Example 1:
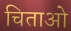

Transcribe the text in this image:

चिताओ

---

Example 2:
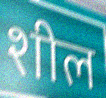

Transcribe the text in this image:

शील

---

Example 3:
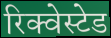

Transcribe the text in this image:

रिक्वेस्टेड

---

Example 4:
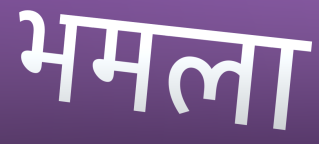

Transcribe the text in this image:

भमला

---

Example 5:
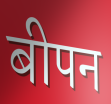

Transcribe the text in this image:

बीपन